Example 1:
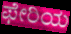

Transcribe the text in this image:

ಫೇರಿಯ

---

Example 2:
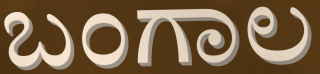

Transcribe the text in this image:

ಬಂಗಾಲ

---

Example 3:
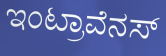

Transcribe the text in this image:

ಇಂಟ್ರಾವೆನಸ್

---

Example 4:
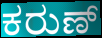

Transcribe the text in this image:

ಕರುಣ್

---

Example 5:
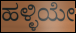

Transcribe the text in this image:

ಹಳ್ಳಿಯೇ